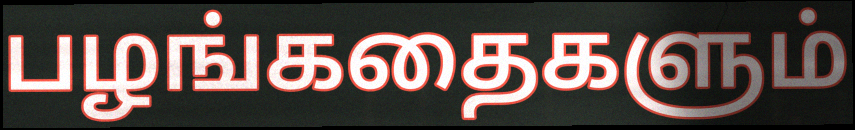
பழங்கதைகளும்